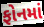
ફોનમાં